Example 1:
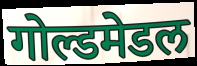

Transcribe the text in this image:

गोल्डमेडल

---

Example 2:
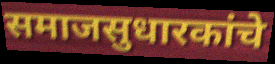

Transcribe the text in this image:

समाजसुधारकांचे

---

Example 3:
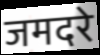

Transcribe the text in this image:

जमदरे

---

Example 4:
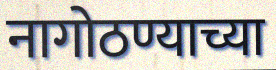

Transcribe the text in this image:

नागोठण्याच्या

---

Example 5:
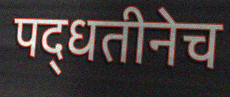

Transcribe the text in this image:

पद्धतीनेच